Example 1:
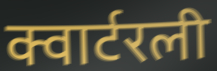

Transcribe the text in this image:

क्वार्टरली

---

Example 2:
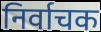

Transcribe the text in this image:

निर्वाचक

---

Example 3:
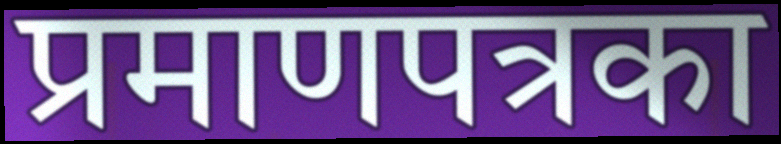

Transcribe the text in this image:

प्रमाणपत्रका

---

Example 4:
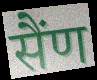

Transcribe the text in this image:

सैंण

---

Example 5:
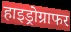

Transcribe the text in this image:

हाइड्रोग्राफर